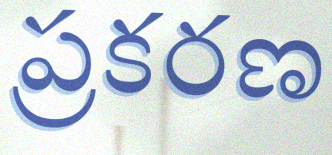
ప్రకరణ